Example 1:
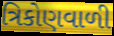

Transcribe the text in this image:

ત્રિકોણવાળી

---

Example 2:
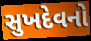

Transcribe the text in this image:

સુખદેવનો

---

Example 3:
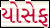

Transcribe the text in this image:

યોસેફ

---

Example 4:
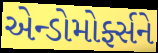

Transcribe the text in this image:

એન્ડોમોર્ફ્સને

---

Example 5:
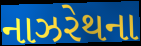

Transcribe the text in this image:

નાઝરેથના